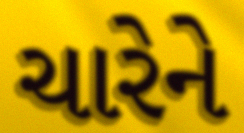
ચારેને